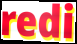
redi